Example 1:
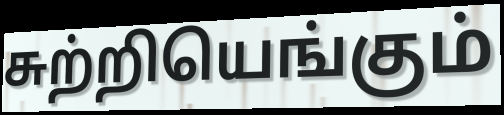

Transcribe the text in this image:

சுற்றியெங்கும்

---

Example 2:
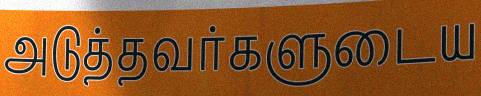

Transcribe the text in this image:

அடுத்தவர்களுடைய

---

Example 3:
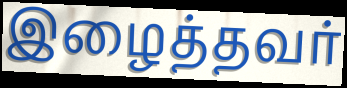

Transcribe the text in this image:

இழைத்தவர்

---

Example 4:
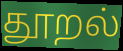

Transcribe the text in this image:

தூறல்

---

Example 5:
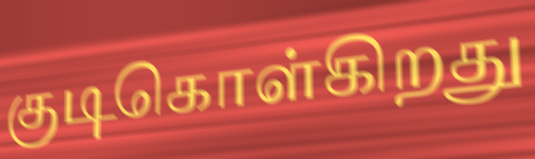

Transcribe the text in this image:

குடிகொள்கிறது